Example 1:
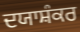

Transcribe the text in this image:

ਦਯਾਸ਼ੰਕਰ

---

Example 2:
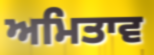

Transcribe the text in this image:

ਅਮਿਤਾਵ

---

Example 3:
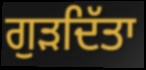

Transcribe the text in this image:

ਗੁੜਦਿੱਤਾ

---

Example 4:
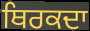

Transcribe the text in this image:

ਥਿਰਕਦਾ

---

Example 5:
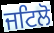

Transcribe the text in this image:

ਜਟਿਲੋ